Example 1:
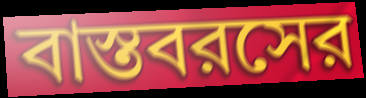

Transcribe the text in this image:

বাস্তবরসের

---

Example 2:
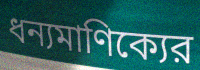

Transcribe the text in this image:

ধন্যমাণিক্যের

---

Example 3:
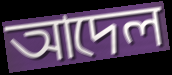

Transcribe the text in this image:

আদেল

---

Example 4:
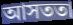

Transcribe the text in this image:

আসততা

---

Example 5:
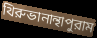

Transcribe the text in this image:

থিরুভানান্থাপুরাম